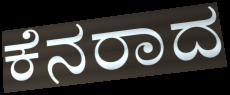
ಕೆನರಾದ